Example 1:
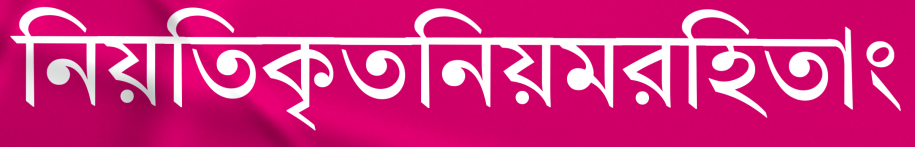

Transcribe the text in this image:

নিয়তিকৃতনিয়মরহিতাং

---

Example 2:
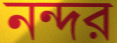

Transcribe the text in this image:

নন্দর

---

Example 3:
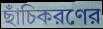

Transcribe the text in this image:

ছাঁচিকরণের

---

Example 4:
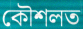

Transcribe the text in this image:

কৌশলত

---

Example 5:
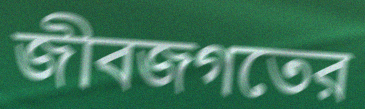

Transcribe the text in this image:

জীবজগতের